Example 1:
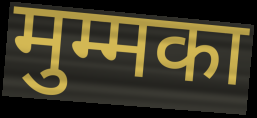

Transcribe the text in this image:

मुम्मका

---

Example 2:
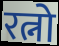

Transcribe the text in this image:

रत्नो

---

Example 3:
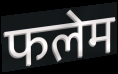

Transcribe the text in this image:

फलेम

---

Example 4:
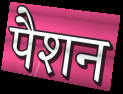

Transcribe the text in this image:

पैशन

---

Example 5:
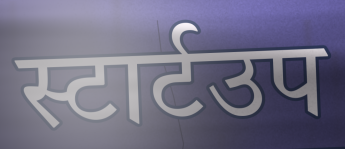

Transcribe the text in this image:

स्टार्टउप